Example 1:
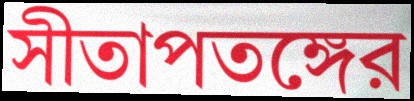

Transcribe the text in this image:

সীতাপতঙ্গের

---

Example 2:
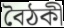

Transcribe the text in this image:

বৈঠকী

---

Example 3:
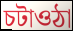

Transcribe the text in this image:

চটাওঠা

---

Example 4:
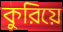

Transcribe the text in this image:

কুরিয়ে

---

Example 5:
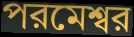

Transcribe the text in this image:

পরমেশ্বর